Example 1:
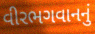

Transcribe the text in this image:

વીરભગવાનનું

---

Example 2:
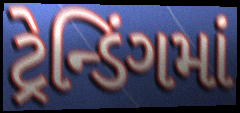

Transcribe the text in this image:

ટ્રેન્ડિંગમાં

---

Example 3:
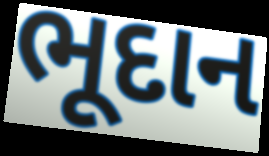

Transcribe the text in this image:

ભૂદાન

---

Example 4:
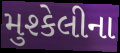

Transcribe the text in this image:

મુશ્કેલીના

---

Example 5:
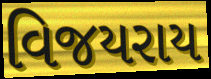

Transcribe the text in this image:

વિજયરાય